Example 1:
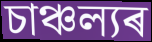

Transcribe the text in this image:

চাঞ্চল্যৰ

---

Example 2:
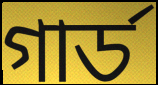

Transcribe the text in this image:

গাৰ্ড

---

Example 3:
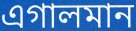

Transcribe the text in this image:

এগালমান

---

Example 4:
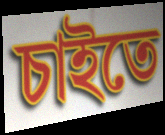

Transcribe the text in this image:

চাইতে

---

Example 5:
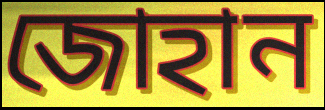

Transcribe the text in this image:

জোহান